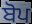
ਬੋਪ